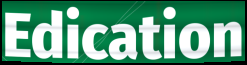
Edication